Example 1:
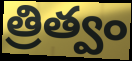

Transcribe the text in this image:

త్రిత్వం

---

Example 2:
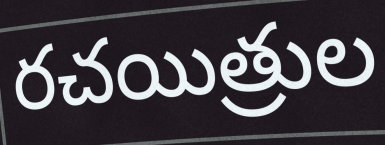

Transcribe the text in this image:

రచయిత్రుల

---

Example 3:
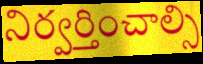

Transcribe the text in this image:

నిర్వర్తించాల్సి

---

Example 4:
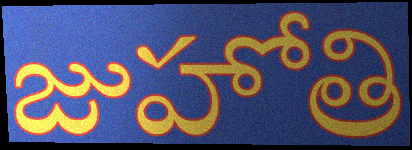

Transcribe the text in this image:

జుహోతి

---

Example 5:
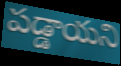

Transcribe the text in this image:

పడ్డాయని